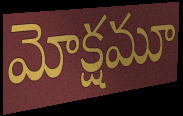
మోక్షమూ